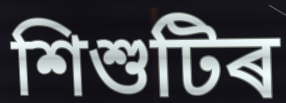
শিশুটিৰ